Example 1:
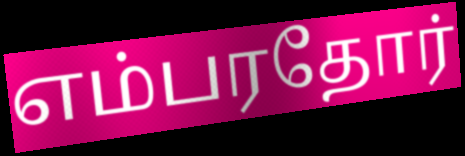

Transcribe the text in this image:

எம்பரதோர்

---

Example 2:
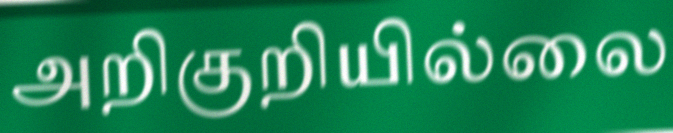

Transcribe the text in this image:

அறிகுறியில்லை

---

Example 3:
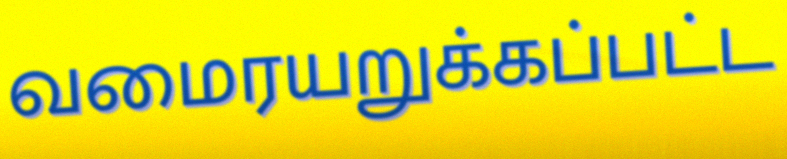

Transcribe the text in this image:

வமைரயறுக்கப்பட்ட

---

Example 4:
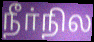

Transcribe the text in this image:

நீர்நில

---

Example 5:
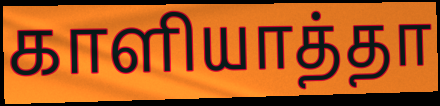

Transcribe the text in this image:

காளியாத்தா